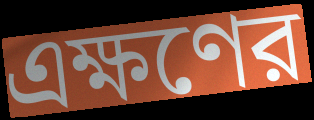
এক্ষণের